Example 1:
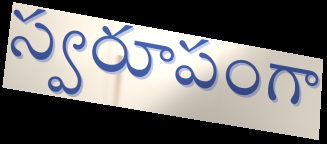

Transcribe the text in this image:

స్వరూపంగా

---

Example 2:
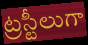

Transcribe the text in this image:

ట్రస్టీలుగా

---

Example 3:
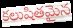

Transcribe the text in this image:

కలుషితమైన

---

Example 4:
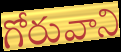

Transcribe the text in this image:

గోరువాని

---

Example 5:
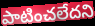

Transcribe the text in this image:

పాటించలేదని